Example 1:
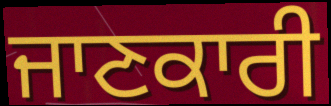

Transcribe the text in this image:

ਜਾਣਕਾਰੀ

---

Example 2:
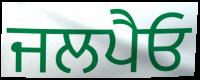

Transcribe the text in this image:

ਜਲਪੈਓ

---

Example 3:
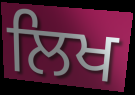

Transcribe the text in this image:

ਲਿਖ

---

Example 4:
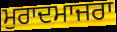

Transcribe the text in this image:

ਮੁਰਾਦਮਾਜਰਾ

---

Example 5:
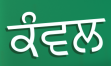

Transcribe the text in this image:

ਕੰਵਲ